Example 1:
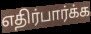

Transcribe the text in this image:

எதிர்பார்க்க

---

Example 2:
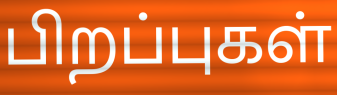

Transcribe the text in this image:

பிறப்புகள்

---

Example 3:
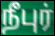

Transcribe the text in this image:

நீபுர்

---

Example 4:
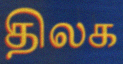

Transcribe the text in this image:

திலக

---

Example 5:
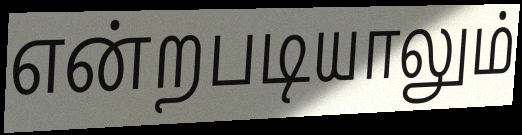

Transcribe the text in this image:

என்றபடியாலும்